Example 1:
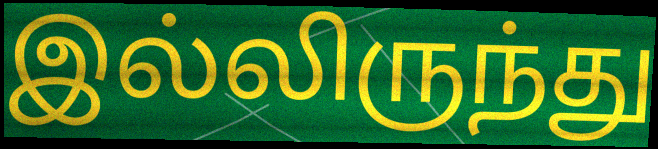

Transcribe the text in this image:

இல்லிருந்து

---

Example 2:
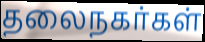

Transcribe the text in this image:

தலைநகர்கள்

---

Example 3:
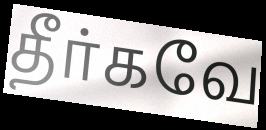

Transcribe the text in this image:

தீர்கவே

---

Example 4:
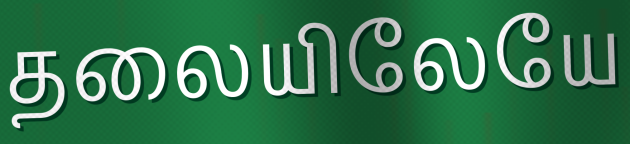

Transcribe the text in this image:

தலையிலேயே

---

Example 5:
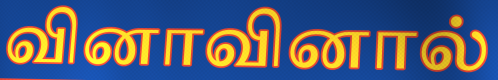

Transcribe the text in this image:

வினாவினால்